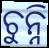
ଚୁନ୍ନି